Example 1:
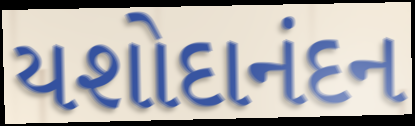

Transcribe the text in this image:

યશોદાનંદન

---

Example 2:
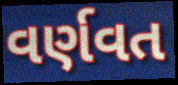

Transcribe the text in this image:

વર્ણવત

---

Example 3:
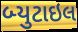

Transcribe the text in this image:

બ્યુટાઇલ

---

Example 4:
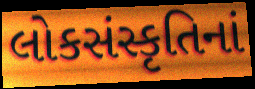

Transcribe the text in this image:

લોકસંસ્કૃતિનાં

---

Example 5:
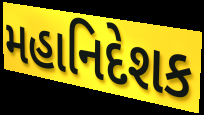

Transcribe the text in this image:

મહાનિદેશક